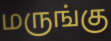
மருங்கு